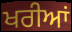
ਖਰੀਆਂ